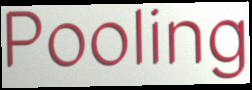
Pooling